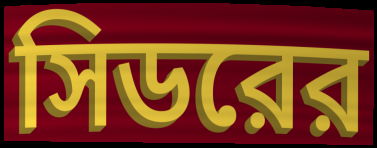
সিডরের